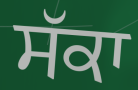
ਸੱਕਾ